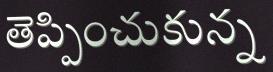
తెప్పించుకున్న